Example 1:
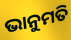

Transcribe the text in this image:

ଭାନୁମତି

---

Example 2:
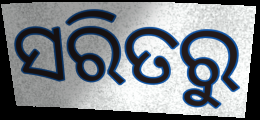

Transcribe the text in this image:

ସରିତରୁ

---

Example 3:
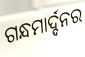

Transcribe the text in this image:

ଗନ୍ଧମାର୍ଦ୍ଦନର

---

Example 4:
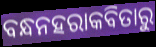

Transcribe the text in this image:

ବନ୍ଧନହରାକବିତାରୁ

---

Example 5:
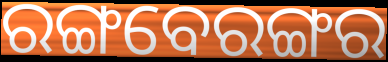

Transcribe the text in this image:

ରଙ୍ଗବେରଙ୍ଗର